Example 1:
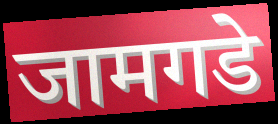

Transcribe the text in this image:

जामगडे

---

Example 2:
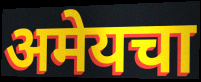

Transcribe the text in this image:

अमेयचा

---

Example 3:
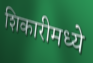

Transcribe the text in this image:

शिकारीमध्ये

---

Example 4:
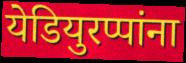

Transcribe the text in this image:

येडियुरप्पांना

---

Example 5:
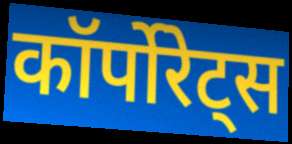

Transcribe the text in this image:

कॉर्पोरेट्स